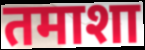
तमाशा